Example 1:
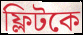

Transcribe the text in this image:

ফ্লিটকে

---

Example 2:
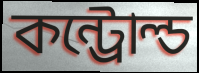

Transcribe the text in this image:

কন্ট্রোল্ড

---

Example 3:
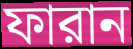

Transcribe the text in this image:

ফারান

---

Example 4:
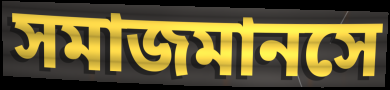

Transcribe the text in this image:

সমাজমানসে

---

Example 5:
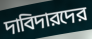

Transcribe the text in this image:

দাবিদারদের